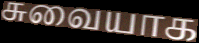
சுவையாக